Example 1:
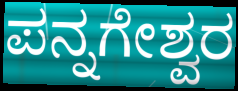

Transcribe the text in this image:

ಪನ್ನಗೇಶ್ವರ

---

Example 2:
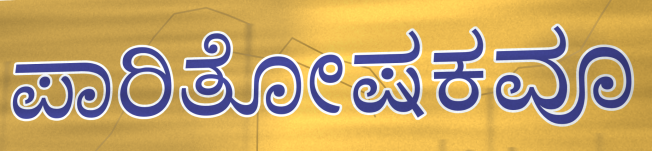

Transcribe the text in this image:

ಪಾರಿತೋಷಕವೂ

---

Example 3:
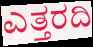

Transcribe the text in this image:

ಎತ್ತರದಿ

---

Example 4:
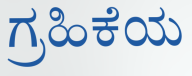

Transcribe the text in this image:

ಗ್ರಹಿಕೆಯ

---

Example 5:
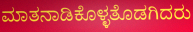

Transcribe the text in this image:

ಮಾತನಾಡಿಕೊಳ್ಳತೊಡಗಿದರು